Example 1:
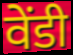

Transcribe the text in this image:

वेंडी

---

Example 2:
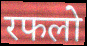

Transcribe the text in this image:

रफलो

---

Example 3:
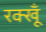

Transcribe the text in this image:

रक्खूँ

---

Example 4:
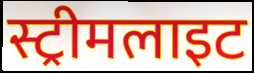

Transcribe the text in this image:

स्ट्रीमलाइट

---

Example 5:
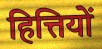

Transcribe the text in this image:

हित्तियों